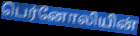
பெர்னோலியின்